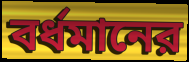
বর্ধমানের